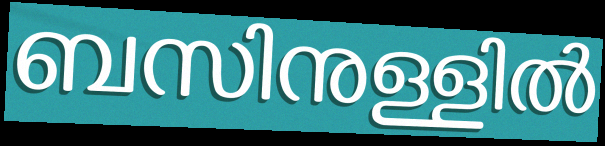
ബസിനുള്ളിൽ